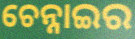
ଚେନ୍ନାଇର